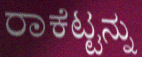
ರಾಕೆಟ್ಟನ್ನು